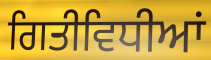
ਗਿਤੀਵਿਧੀਆਂ